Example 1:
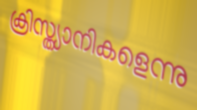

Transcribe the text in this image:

ക്രിസ്ത്യാനികളെന്നു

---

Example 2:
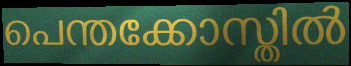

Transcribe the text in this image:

പെന്തക്കോസ്തിൽ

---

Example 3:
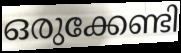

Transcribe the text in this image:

ഒരുക്കേണ്ടി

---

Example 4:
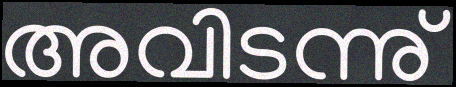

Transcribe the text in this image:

അവിടന്നു്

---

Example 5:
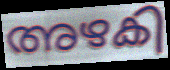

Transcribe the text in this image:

അഴകി